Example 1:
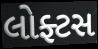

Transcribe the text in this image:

લોફ્ટસ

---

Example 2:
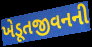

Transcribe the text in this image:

ખેડૂતજીવનની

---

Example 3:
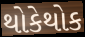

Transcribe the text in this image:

થોકેથોક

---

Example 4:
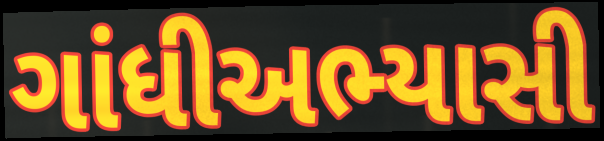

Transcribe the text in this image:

ગાંધીઅભ્યાસી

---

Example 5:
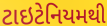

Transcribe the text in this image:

ટાઇટેનિયમથી